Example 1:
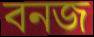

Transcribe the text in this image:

বনজ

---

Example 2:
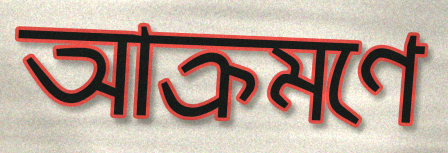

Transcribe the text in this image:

আক্ৰমণে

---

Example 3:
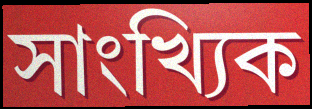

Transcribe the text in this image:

সাংখ্যিক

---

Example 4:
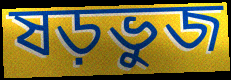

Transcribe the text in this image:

ষড়ভুজ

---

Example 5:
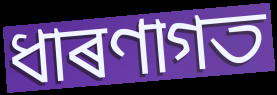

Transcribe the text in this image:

ধাৰণাগত